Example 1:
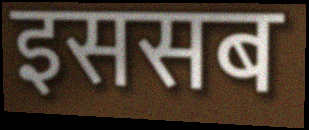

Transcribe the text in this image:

इससब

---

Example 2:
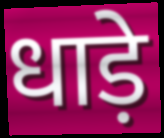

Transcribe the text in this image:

धाड़े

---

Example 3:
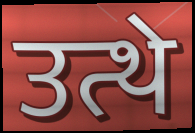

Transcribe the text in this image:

उत्थे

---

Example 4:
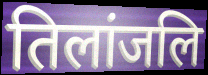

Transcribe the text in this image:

तिलांजलि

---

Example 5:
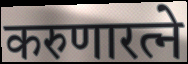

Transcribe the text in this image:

करुणारत्ने